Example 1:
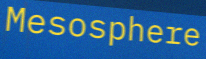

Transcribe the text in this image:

Mesosphere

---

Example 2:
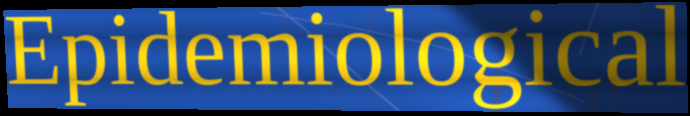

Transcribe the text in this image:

Epidemiological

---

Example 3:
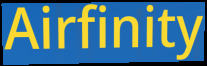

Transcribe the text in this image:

Airfinity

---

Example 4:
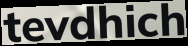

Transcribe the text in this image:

tevdhich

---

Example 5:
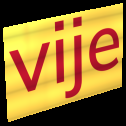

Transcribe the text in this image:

vije